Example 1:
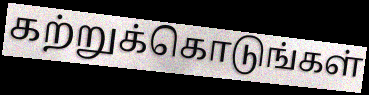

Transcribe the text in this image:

கற்றுக்கொடுங்கள்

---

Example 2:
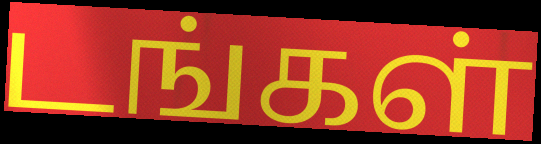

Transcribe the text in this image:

டங்கள்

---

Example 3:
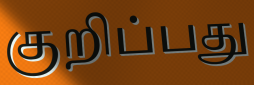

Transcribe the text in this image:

குறிப்பது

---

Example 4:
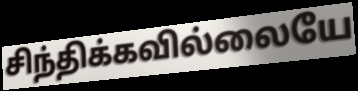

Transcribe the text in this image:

சிந்திக்கவில்லையே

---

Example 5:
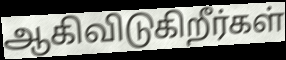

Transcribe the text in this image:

ஆகிவிடுகிறீர்கள்